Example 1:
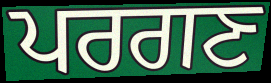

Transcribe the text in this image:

ਪਰਗਣ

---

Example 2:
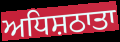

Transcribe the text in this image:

ਅਧਿਸ਼ਠਾਤਾ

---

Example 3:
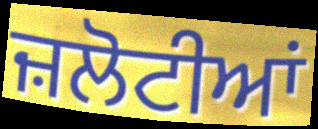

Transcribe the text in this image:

ਜ਼ਲੋਟੀਆਂ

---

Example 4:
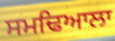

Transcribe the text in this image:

ਸਮਢਿਆਲਾ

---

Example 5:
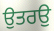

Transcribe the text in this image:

ਉਤਰਉ